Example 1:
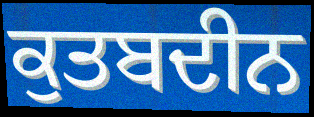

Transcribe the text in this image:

ਕੁਤਬਦੀਨ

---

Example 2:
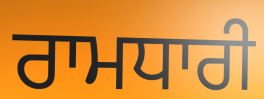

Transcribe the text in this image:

ਰਾਮਧਾਰੀ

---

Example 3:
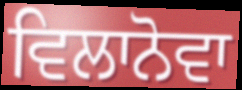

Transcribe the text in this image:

ਵਿਲਾਨੋਵਾ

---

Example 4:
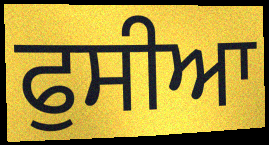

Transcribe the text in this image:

ਫੁਸੀਆ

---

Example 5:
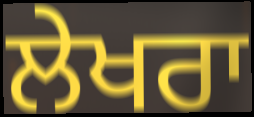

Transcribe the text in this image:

ਲੇਖਰਾ